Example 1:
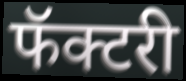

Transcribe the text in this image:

फॅक्टरी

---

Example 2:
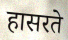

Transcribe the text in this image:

हासरते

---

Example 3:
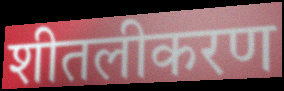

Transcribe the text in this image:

शीतलीकरण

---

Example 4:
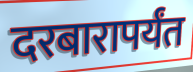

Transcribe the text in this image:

दरबारापर्यंत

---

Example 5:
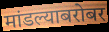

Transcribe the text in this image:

मांडल्याबरोबर